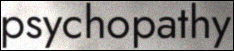
psychopathy